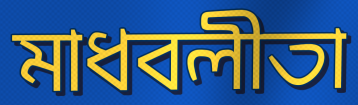
মাধবলীতা